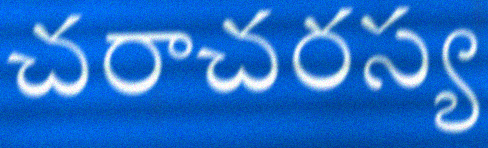
చరాచరస్య